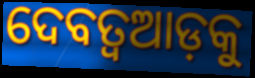
ଦେବତ୍ୱଆଡ଼କୁ